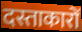
दस्ताकारों